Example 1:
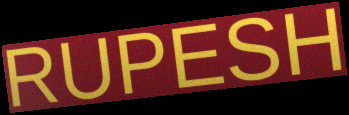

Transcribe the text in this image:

RUPESH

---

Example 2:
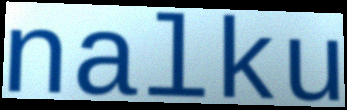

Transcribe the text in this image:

nalku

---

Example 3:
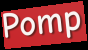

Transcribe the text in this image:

Pomp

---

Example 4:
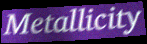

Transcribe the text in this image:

Metallicity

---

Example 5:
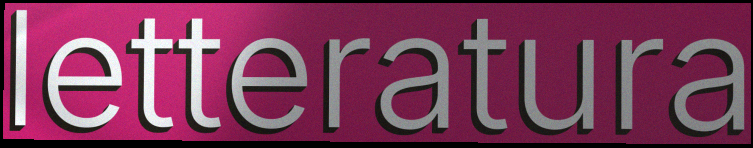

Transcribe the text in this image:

letteratura